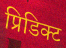
प्रिडिक्ट